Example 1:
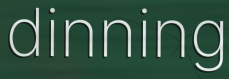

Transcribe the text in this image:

dinning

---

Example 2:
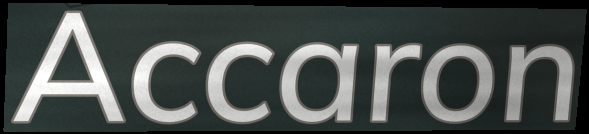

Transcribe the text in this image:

Accaron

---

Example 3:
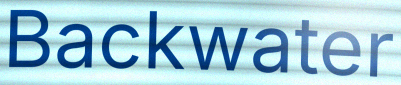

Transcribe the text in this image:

Backwater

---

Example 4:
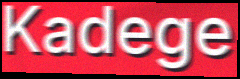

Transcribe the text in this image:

Kadege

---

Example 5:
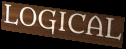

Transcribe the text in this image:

LOGICAL